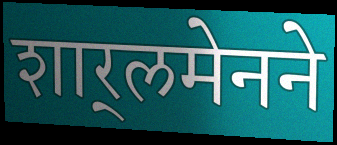
शार्लमेनने